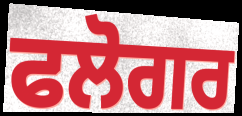
ਫਲੋਗਰ